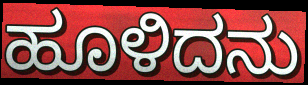
ಹೂಳಿದನು